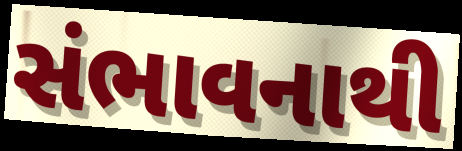
સંભાવનાથી